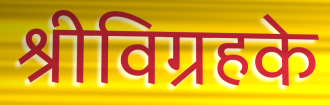
श्रीविग्रहके